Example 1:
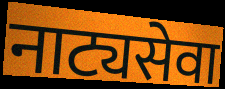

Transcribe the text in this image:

नाट्यसेवा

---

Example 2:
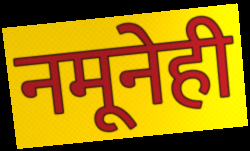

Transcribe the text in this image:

नमूनेही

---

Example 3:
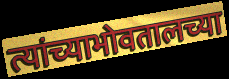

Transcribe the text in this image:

त्यांच्याभोवतालच्या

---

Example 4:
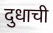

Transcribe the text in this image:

दुधाची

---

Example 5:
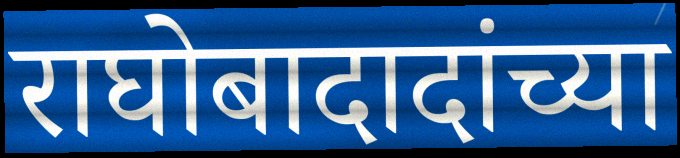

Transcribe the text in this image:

राघोबादादांच्या